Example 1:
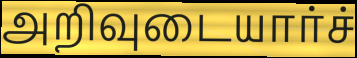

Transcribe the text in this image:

அறிவுடையார்ச்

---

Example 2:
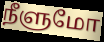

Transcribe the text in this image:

நீளுமோ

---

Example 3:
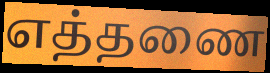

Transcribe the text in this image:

எத்தணை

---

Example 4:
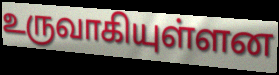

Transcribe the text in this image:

உருவாகியுள்ளன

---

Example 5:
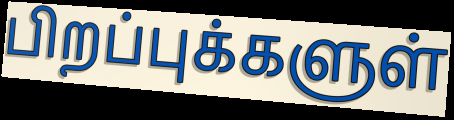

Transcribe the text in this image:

பிறப்புக்களுள்